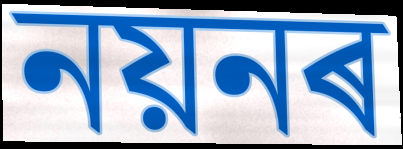
নয়নৰ